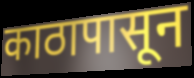
काठापासून